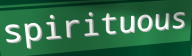
spirituous